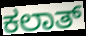
ಕಲಾತ್